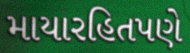
માયારહિતપણે